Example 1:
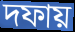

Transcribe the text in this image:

দফায়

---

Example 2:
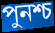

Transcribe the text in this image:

পুনশ্চ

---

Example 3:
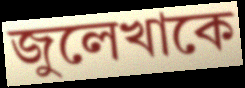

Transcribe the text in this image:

জুলেখাকে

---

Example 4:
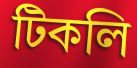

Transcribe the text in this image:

টিকলি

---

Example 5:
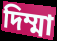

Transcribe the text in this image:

দিম্মা